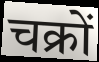
चक्रों